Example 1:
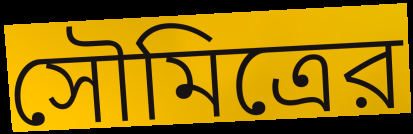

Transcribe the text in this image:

সৌমিত্রের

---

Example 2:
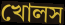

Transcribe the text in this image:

খোলস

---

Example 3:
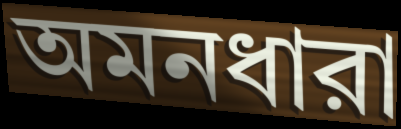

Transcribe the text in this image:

অমনধারা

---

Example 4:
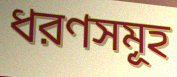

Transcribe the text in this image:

ধরণসমূহ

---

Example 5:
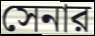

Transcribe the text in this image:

সেনার